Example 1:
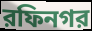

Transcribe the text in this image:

রফিনগর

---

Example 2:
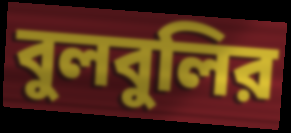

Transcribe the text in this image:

বুলবুলির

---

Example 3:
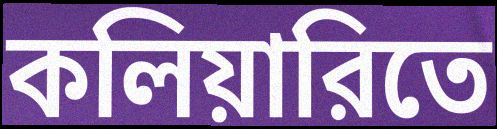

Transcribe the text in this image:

কলিয়ারিতে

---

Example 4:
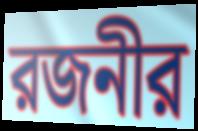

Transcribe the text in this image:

রজনীর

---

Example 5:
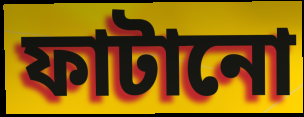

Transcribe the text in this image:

ফাটানো